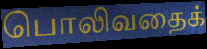
பொலிவதைக்